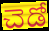
చెడో